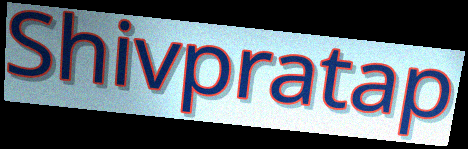
Shivpratap